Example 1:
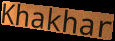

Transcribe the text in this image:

Khakhar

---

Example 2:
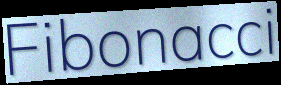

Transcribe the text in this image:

Fibonacci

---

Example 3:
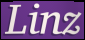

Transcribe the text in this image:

Linz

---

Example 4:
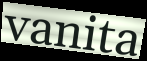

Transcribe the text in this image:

vanita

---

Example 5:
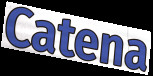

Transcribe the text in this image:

Catena